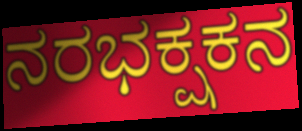
ನರಭಕ್ಷಕನ